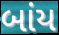
બાંય